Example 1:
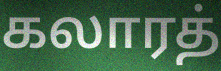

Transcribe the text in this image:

கலாரத்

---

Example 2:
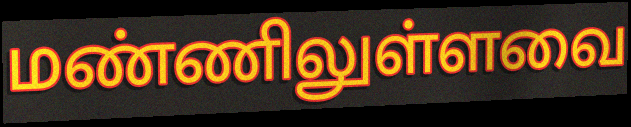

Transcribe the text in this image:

மண்ணிலுள்ளவை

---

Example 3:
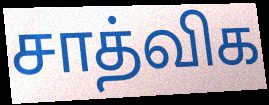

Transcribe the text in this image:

சாத்விக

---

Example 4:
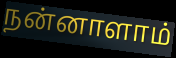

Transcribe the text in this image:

நன்னாளாம்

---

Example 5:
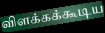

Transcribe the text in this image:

விளக்கக்கூடிய